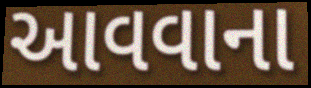
આવવાના